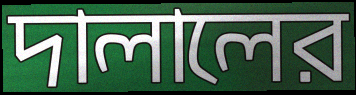
দালালের